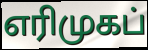
எரிமுகப்